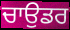
ਚਾਉਡਰ